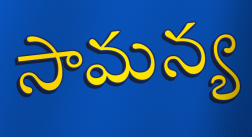
సామన్య